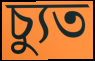
চ্যুত